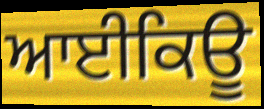
ਆਈਕਿਊ